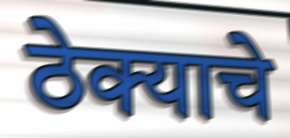
ठेक्याचे